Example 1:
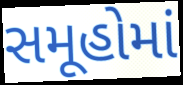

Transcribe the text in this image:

સમૂહોમાં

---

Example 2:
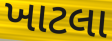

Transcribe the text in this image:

ખાટલા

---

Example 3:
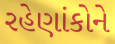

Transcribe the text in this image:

રહેણાંકોને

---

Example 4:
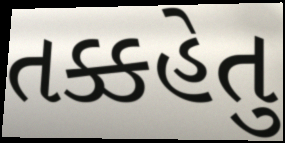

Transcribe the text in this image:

તક્કહેતુ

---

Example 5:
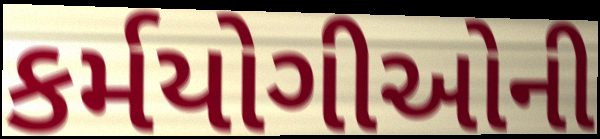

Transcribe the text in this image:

કર્મયોગીઓની